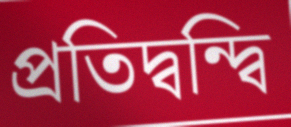
প্রতিদ্বন্দ্বি